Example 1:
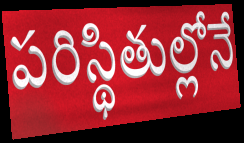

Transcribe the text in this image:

పరిస్థితుల్లోనే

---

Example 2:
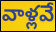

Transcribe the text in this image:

వాళ్లవే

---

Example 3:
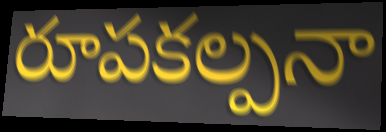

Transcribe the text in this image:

రూపకల్పనా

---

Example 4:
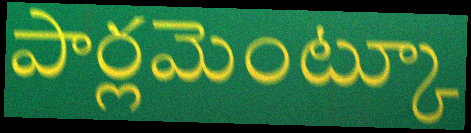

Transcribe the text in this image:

పార్లమెంట్కూ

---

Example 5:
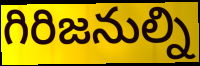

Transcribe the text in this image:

గిరిజనుల్ని